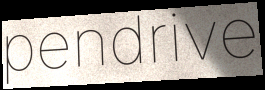
pendrive